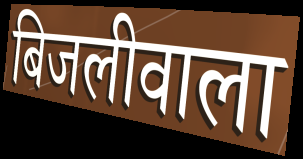
बिजलीवाला